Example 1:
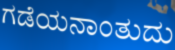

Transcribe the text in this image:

ಗಡೆಯನಾಂತುದು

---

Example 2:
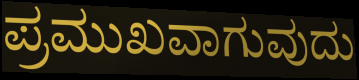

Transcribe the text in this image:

ಪ್ರಮುಖವಾಗುವುದು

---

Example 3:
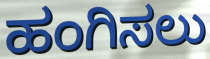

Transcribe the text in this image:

ಹಂಗಿಸಲು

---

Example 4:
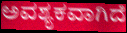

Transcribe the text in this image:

ಅವಶ್ಯಕವಾಗಿದೆ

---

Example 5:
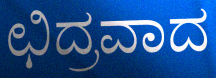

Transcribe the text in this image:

ಛಿದ್ರವಾದ